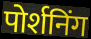
पोर्शनिंग